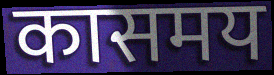
कासमय